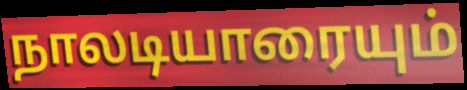
நாலடியாரையும்